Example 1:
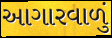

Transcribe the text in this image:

આગારવાળું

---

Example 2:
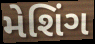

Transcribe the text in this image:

મેશિંગ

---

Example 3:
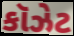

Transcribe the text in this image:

કૉઝેટ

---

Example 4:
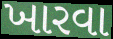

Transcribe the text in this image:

ખારવા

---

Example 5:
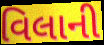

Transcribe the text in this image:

વિલાની